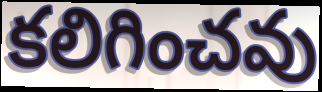
కలిగించవు